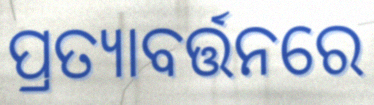
ପ୍ରତ୍ୟାବର୍ତ୍ତନରେ